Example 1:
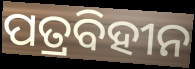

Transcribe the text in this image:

ପତ୍ରବିହୀନ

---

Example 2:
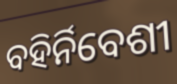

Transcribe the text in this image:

ବହିର୍ନିବେଶୀ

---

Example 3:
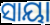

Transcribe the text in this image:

ସାୟା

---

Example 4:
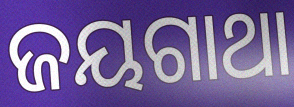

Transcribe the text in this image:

ଜୟଗାଥା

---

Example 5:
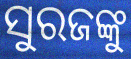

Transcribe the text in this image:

ସୁରଜଙ୍କୁ